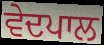
ਵੇਦਪਾਲ